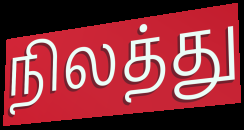
நிலத்து